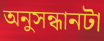
অনুসন্ধানটা